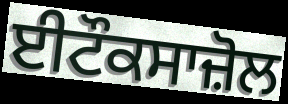
ਈਟੌਕਸਾਜ਼ੋਲ